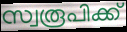
സ്വരൂപിക്ക്